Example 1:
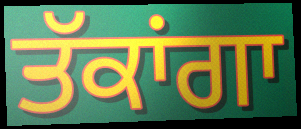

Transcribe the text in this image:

ਤੱਕਾਂਗਾ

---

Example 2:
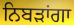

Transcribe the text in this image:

ਨਿਬੜਾਂਗਾ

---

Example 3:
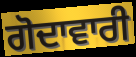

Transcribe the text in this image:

ਗੋਦਾਵਾਰੀ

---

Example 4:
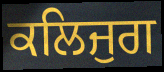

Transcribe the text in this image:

ਕਲਿਜੁਗ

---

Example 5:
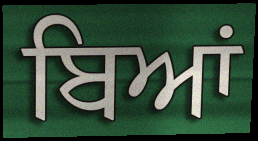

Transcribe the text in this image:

ਬਿਆਂ